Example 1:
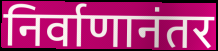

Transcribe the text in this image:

निर्वाणानंतर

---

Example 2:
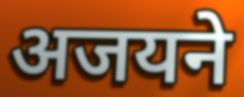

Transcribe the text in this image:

अजयने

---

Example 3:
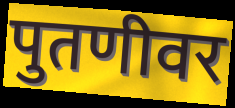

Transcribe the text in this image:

पुतणीवर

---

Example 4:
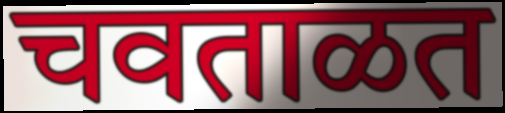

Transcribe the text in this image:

चवताळत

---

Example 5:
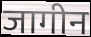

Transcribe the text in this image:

जागीन